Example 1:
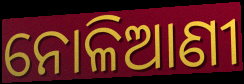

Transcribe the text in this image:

ନୋଳିଆଣୀ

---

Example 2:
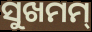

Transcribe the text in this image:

ସୁଖମମ୍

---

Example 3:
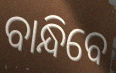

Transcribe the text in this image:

ବାନ୍ଧିବେ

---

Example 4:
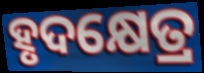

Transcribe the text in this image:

ହୃଦକ୍ଷେତ୍ର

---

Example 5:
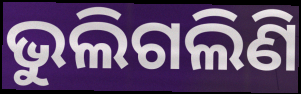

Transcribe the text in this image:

ଭୁଲିଗଲିଣି